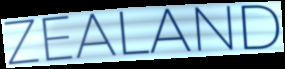
ZEALAND